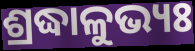
ଶ୍ରଦ୍ଧାଳୁଭ୍ୟଃ